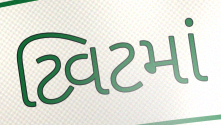
ટ્વિટમાં